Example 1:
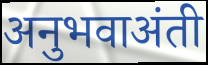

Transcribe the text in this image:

अनुभवाअंती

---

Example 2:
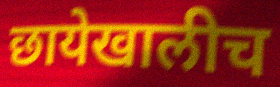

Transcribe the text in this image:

छायेखालीच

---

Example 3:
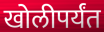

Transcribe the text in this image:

खोलीपर्यंत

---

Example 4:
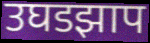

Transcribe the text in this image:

उघडझाप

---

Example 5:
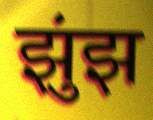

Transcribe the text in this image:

झुंझ